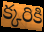
క్కరికి